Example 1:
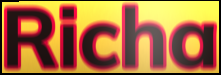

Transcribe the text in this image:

Richa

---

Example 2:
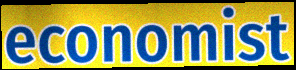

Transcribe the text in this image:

economist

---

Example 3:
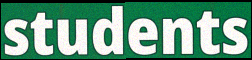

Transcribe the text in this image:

students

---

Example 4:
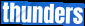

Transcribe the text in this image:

thunders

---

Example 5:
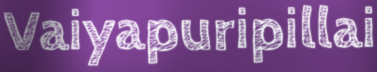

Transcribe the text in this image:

Vaiyapuripillai